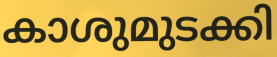
കാശുമുടക്കി